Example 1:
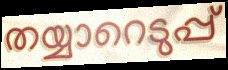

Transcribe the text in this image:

തയ്യാറെടുപ്പ്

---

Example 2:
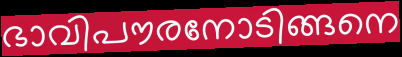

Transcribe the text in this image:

ഭാവിപൗരനോടിങ്ങനെ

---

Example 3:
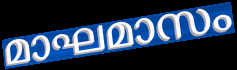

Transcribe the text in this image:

മാഘമാസം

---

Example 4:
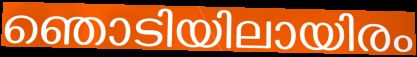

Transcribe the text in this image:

ഞൊടിയിലായിരം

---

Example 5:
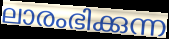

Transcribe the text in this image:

ലാരംഭിക്കുന്ന